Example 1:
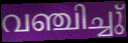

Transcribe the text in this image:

വഞ്ചിച്ചു്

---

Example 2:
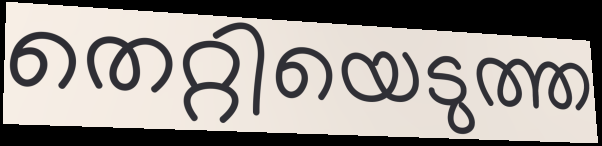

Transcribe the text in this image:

തെറ്റിയെടുത്ത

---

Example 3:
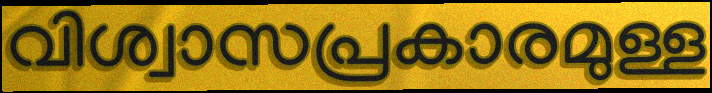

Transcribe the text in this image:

വിശ്വാസപ്രകാരമുള്ള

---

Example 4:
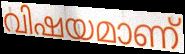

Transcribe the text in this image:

വിഷയമാണ്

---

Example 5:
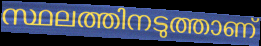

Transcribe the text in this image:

സ്ഥലത്തിനടുത്താണ്